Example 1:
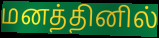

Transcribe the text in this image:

மனத்தினில்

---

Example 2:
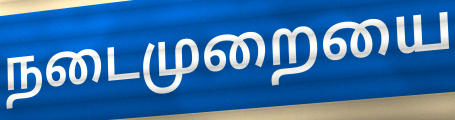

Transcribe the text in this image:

நடைமுறையை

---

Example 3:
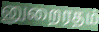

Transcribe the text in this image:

னுறைரதம்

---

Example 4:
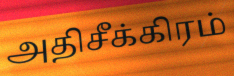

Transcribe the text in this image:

அதிசீக்கிரம்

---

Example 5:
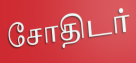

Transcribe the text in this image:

சோதிடர்